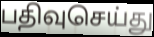
பதிவுசெய்து